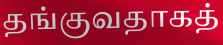
தங்குவதாகத்